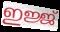
ഇജ്ജ്